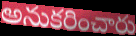
అనుకరించారు